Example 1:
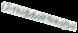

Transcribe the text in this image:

பிரயத்தனங்களும்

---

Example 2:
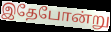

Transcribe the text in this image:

இதேபோன்று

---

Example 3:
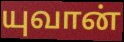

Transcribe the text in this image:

யுவான்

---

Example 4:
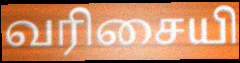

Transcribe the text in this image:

வரிசையி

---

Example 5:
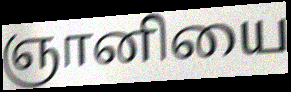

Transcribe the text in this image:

ஞானியை